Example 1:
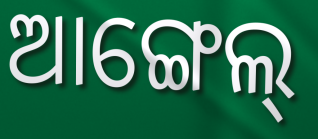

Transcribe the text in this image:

ଆଙ୍ଗେଲ୍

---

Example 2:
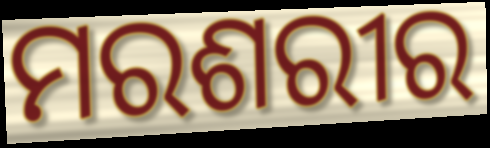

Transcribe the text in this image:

ମରଶରୀର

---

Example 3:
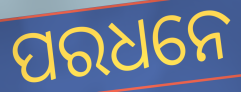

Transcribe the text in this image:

ପରଧନେ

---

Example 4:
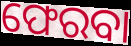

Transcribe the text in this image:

ଫେରବା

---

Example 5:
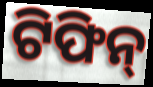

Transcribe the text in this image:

ଟିଫିନ୍